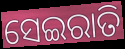
ସେଇରାତି